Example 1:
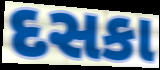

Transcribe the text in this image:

દસકા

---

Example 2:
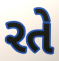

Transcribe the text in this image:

રતે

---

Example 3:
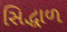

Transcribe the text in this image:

સિદ્ધાળ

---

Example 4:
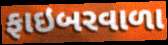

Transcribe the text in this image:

ફાઇબરવાળા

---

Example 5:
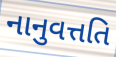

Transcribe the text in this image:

નાનુવત્તતિ